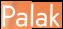
Palak